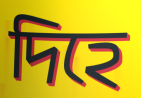
দিহে